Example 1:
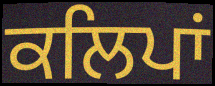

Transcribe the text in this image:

ਕਲਿਪਾਂ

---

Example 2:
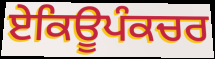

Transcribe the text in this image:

ਏਕਿਊਪੰਕਚਰ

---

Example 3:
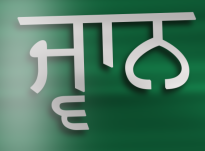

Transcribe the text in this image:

ਜ੍ਵਾਨ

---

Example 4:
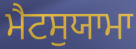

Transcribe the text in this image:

ਮੈਟਸੁਯਾਮਾ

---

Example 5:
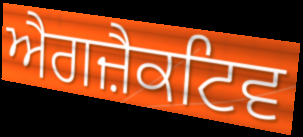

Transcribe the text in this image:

ਐਗਜ਼ੈਕਟਿਵ